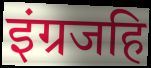
इंग्रजहि